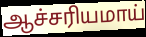
ஆச்சரியமாய்